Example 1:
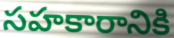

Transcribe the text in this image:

సహకారానికి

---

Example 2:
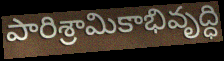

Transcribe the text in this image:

పారిశ్రామికాభివృద్ధి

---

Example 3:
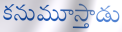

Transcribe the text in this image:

కనుమూస్తాడు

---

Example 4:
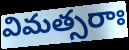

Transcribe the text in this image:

విమత్సరాః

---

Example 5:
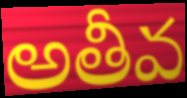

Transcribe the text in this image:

అతీవ